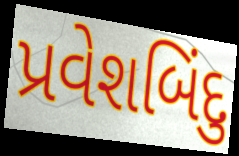
પ્રવેશબિંદુ